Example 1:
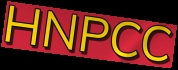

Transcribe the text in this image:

HNPCC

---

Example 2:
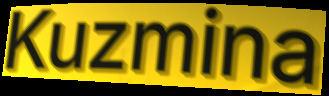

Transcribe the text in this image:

Kuzmina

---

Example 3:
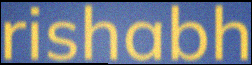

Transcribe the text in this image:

rishabh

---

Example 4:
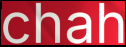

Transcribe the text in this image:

chah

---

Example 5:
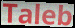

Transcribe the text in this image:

Taleb